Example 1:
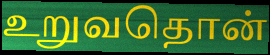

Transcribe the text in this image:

உறுவதொன்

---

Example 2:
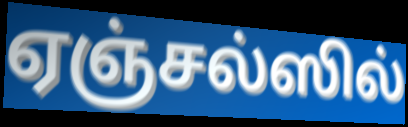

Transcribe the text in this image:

ஏஞ்சல்ஸில்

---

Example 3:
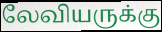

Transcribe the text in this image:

லேவியருக்கு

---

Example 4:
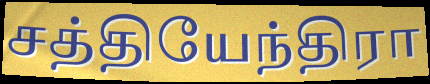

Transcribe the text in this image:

சத்தியேந்திரா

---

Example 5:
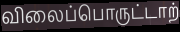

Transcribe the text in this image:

விலைப்பொருட்டாற்